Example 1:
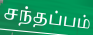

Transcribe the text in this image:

சந்தப்பம்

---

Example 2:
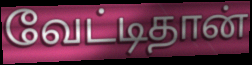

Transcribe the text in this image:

வேட்டிதான்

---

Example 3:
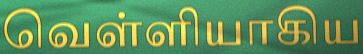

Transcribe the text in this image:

வெள்ளியாகிய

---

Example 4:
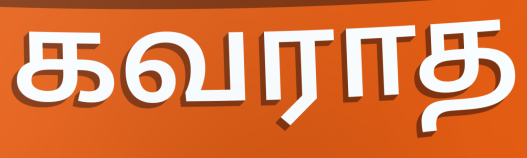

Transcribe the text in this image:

கவராத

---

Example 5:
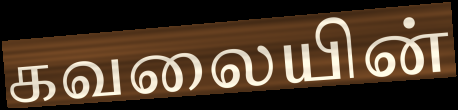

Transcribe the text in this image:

கவலையின்